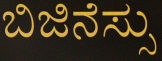
ಬಿಜಿನೆಸ್ಸು